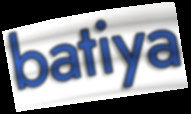
batiya